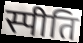
स्पीति